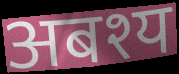
अबश्य